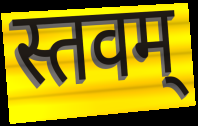
स्तवम्